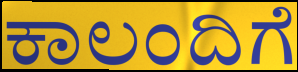
ಕಾಲಂದಿಗೆ